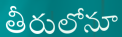
తీరులోనూ